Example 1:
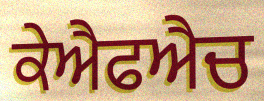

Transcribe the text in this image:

ਕੇਐਫਐਚ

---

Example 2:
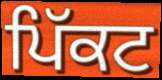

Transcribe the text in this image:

ਪਿੱਕਟ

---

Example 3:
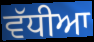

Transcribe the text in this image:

ਵੱਧੀਆ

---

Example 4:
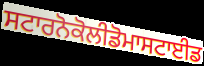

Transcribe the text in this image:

ਸਟਾਰਨੋਕੋਲੀਡੋਮਾਸਟਾਈਡ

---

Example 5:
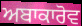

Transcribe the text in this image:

ਅਬਾਕਾਰੋਵ